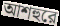
আশহুরে